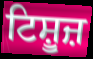
ਟਿਸ਼ੂਜ਼